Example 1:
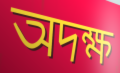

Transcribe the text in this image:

অদক্ষ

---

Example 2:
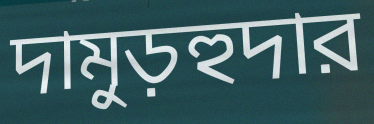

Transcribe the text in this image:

দামুড়হুদার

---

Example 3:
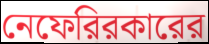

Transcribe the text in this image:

নেফেরিরকারের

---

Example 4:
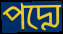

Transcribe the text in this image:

পদ্মে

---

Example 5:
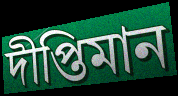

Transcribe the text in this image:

দীপ্তিমান